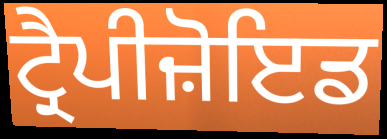
ਟ੍ਰੈਪੀਜ਼ੋਇਡ